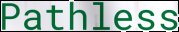
Pathless